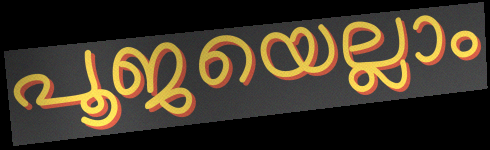
പൂജയെല്ലാം